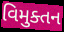
વિમુક્તન